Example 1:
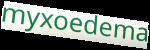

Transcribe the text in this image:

myxoedema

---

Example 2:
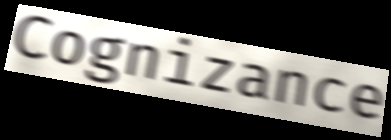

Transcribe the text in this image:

Cognizance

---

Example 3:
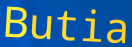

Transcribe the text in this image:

Butia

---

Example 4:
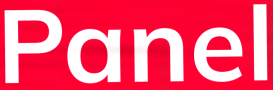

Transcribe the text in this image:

Panel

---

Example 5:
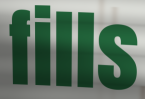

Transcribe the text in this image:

fills